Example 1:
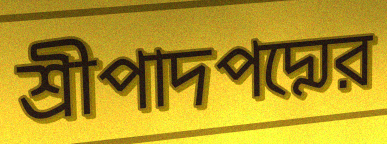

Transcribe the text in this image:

শ্রীপাদপদ্মের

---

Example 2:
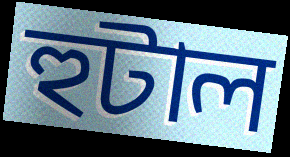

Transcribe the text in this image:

হুটাল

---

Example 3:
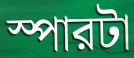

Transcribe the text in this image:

স্পারটা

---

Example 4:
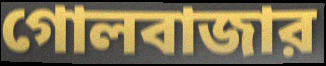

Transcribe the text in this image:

গোলবাজার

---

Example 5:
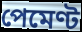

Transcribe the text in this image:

পেমেণ্ট